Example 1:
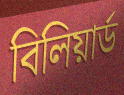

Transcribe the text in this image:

বিলিয়ার্ড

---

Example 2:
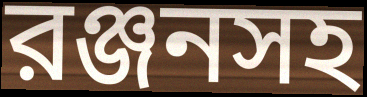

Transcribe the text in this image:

রঞ্জনসহ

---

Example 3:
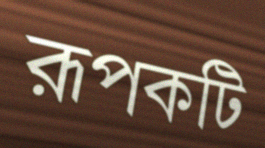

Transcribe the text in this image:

রূপকটি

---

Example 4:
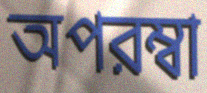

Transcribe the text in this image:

অপরম্বা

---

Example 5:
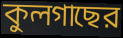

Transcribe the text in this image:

কুলগাছের